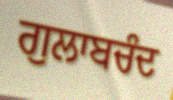
ਗੁਲਾਬਚੰਦ